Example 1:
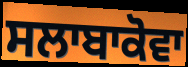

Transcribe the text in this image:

ਸਲਾਬਾਕੋਵਾ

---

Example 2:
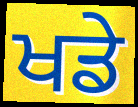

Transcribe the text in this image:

ਖਡੇ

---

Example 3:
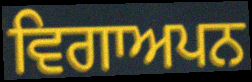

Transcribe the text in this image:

ਵਿਗਾਅਪਨ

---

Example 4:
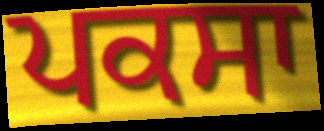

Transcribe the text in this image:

ਪਕਸਾ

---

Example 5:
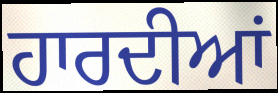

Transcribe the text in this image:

ਹਾਰਦੀਆਂ